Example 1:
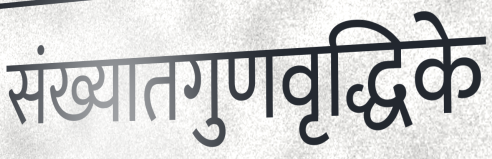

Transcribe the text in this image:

संख्यातगुणवृद्धिके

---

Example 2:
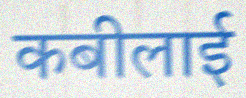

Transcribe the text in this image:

कबीलाई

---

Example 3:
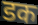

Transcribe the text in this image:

डक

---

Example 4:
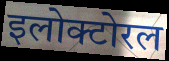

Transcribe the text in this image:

इलोक्टोरल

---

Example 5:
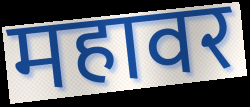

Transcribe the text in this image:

महावर